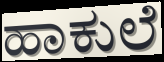
ಹಾಕುಲೆ